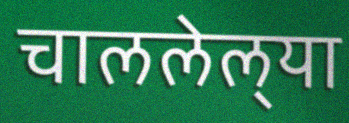
चाललेल्या